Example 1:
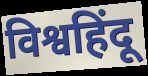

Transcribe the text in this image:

विश्वहिंदू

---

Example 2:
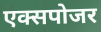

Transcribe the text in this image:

एक्सपोजर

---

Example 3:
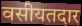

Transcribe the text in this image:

वसीयतदार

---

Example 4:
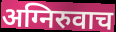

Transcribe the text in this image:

अग्निरुवाच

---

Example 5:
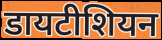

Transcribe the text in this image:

डायटीशियन